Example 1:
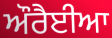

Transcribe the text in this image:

ਔਰੈਈਆ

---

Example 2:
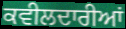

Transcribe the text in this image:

ਕਵੀਲਦਾਰੀਆਂ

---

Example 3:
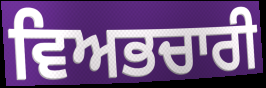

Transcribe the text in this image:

ਵਿਅਭਚਾਰੀ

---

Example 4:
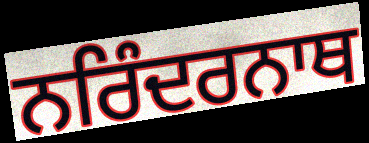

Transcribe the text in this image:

ਨਰਿੰਦਰਨਾਥ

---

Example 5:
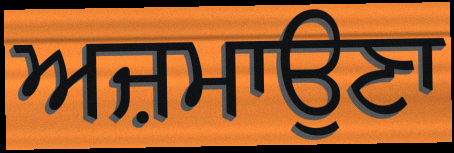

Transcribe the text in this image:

ਅਜ਼ਮਾਉਣਾ